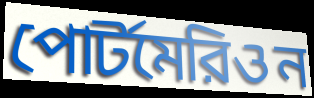
পোর্টমেরিওন